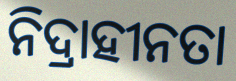
ନିଦ୍ରାହୀନତା